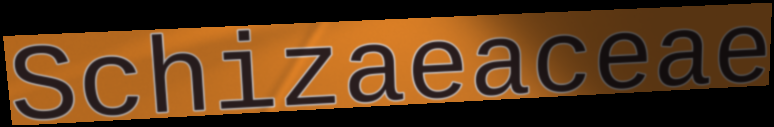
Schizaeaceae